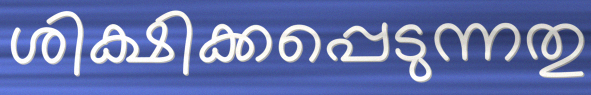
ശിക്ഷിക്കപ്പെടുന്നതു